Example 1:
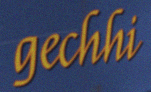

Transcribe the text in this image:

gechhi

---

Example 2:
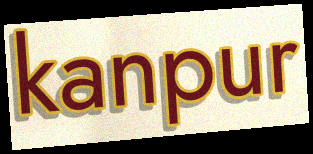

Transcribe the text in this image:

kanpur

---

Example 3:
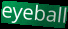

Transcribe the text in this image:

eyeball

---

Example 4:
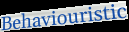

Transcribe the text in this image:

Behaviouristic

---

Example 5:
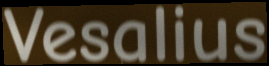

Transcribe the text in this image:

Vesalius